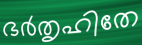
ഭർതൃഹിതേ